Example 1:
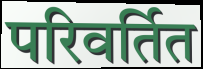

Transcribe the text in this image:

परिवर्तित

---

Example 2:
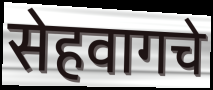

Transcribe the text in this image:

सेहवागचे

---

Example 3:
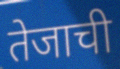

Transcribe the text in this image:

तेजाची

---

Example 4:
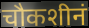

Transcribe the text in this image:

चौकशीनं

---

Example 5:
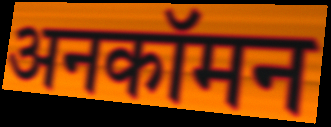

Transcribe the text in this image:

अनकॉमन